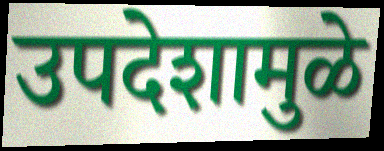
उपदेशामुळे